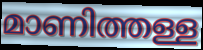
മാണിത്തള്ള